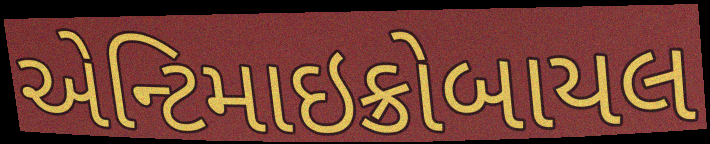
એન્ટિમાઇક્રોબાયલ